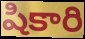
షికారి